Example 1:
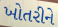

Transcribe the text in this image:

ખોતરીને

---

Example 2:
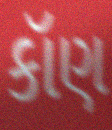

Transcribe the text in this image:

કૉણ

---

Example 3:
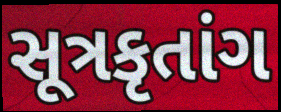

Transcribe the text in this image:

સૂત્રકૃતાંગ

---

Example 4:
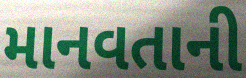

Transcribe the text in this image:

માનવતાની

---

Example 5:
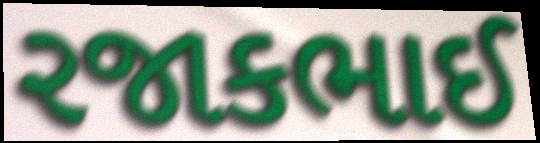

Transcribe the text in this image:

રજાકભાઈ